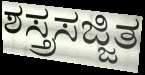
ಶಸ್ತ್ರಸಜ್ಜಿತ